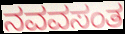
ನವವಸಂತ